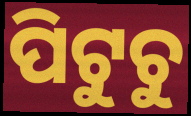
ପିଟୁଚୁ